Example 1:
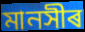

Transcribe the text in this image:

মানসীৰ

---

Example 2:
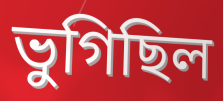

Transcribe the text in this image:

ভুগিছিল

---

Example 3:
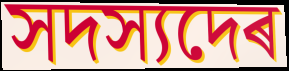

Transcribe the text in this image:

সদস্যদেৰ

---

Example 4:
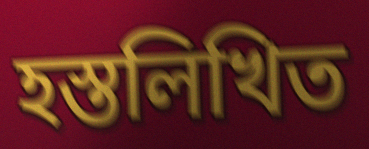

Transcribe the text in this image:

হস্তলিখিত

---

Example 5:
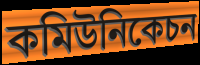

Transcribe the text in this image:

কমিউনিকেচন